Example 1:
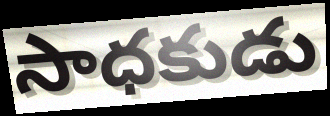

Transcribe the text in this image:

సాధకుడు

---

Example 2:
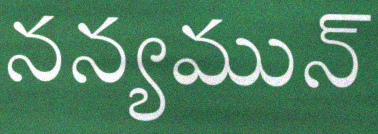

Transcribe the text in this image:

నన్యమున్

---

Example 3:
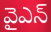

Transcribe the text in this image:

వైఎన్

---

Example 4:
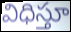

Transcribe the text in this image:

విధిస్తూ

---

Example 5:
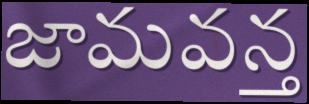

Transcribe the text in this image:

జామవన్త